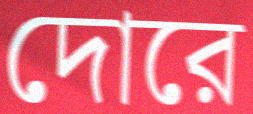
দোরে